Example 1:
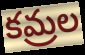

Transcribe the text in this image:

కమ్రల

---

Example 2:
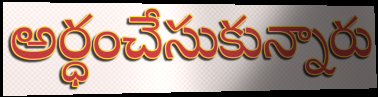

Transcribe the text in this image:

అర్ధంచేసుకున్నారు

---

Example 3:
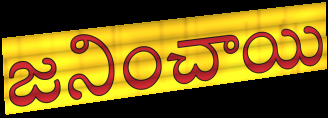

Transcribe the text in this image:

జనించాయి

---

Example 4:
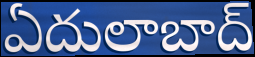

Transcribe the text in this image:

ఏదులాబాద్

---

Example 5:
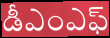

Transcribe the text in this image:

డీఎంఎఫ్